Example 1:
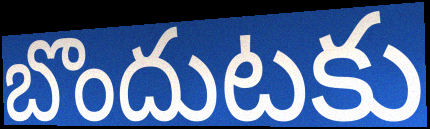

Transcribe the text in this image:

బొందుటకు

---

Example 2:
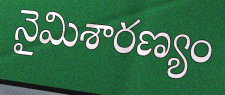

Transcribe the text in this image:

నైమిశారణ్యం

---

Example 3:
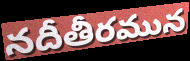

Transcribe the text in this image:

నదీతీరమున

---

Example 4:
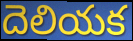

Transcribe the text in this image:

దెలియక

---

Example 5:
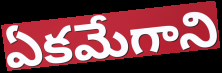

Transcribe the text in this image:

ఏకమేగాని